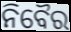
ନିବୈର